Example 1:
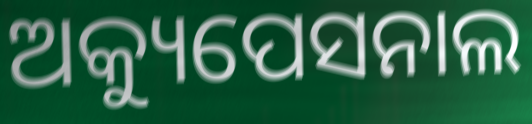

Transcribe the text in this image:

ଅକ୍ୟୁପେସନାଲ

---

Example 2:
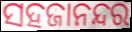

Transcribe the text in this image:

ସହଜାନନ୍ଦର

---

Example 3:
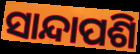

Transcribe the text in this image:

ସାନ୍ଦାପଶି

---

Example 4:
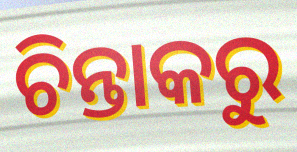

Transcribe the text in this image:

ଚିନ୍ତାକରୁ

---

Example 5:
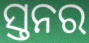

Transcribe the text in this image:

ସ୍ତନର